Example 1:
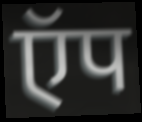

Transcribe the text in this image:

ऍप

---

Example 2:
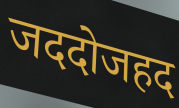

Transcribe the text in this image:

जददोजहद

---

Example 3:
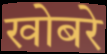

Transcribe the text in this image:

खोबरे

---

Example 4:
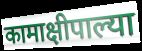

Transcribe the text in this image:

कामाक्षीपाल्या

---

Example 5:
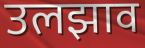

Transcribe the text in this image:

उलझाव